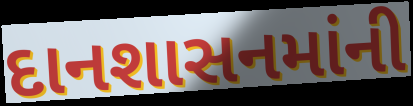
દાનશાસનમાંની